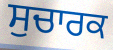
ਸੁਚਾਰਕ